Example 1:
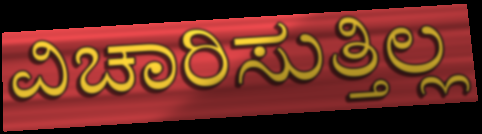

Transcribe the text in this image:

ವಿಚಾರಿಸುತ್ತಿಲ್ಲ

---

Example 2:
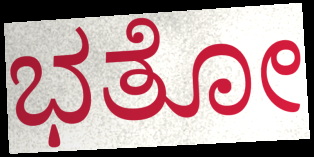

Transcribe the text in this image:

ಭತೋ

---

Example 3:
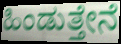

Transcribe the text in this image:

ಹಿಂಡುತ್ತೇನೆ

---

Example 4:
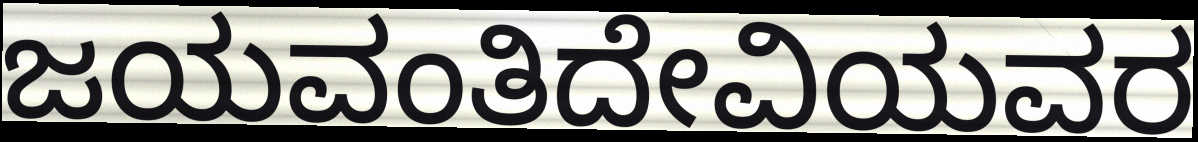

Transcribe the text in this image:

ಜಯವಂತಿದೇವಿಯವರ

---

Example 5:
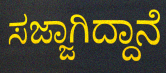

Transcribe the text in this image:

ಸಜ್ಜಾಗಿದ್ದಾನೆ